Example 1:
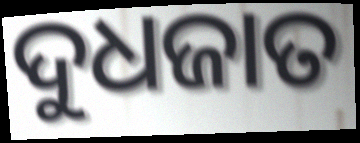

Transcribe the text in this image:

ଦୁଧଜାତ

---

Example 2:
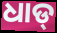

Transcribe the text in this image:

ଧାଡ୍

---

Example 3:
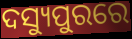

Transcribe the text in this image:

ଦସ୍ୟୁପୁରରେ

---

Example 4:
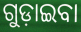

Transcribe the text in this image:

ଗୁଡ଼ାଇବା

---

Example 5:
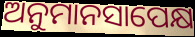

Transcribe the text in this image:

ଅନୁମାନସାପେକ୍ଷ